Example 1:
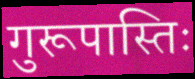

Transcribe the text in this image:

गुरूपास्तिः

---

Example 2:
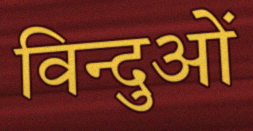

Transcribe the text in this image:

विन्दुओं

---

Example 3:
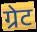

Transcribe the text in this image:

ग्रेट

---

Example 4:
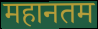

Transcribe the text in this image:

महानतम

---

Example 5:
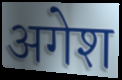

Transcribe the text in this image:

अगेश